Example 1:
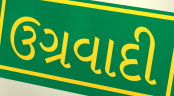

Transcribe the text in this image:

ઉગ્રવાદી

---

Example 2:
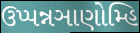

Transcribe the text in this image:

ઉપ્પન્નઞાણોમ્હિ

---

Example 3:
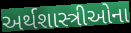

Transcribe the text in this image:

અર્થશાસ્ત્રીઓના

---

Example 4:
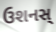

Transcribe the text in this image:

ઉશનસ્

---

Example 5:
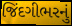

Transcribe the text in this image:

જિંદગીભરનું